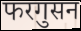
फरगुसन